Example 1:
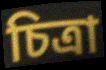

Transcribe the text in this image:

চিত্রা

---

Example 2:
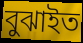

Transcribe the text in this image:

বুঝাইত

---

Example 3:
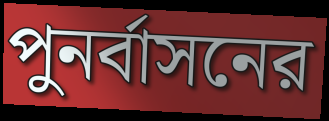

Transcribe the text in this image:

পুনর্বাসনের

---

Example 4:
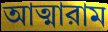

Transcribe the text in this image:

আত্মারাম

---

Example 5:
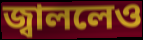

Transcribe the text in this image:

জ্বাললেও